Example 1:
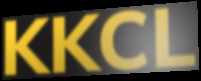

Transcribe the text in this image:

KKCL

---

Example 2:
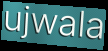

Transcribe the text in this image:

ujwala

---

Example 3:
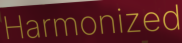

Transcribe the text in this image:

Harmonized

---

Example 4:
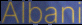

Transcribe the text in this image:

Albani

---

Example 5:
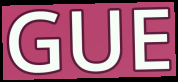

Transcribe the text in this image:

GUE